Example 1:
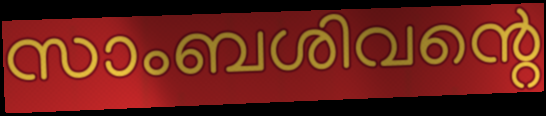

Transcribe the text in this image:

സാംബശിവന്റെ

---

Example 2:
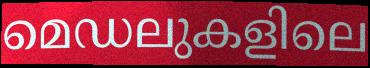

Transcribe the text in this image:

മെഡലുകളിലെ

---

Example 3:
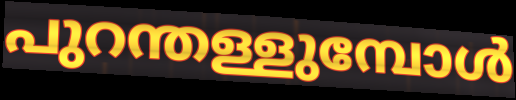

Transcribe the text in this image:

പുറന്തള്ളുമ്പോൾ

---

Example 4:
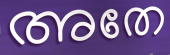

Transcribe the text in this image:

അതേ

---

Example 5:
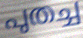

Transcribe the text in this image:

പുതച്ച